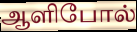
ஆளிபோல்